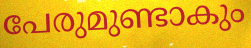
പേരുമുണ്ടാകും